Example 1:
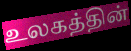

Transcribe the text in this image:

உலகத்தின்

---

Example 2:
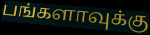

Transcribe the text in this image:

பங்களாவுக்கு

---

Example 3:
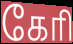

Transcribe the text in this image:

கேரி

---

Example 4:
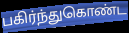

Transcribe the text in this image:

பகிர்ந்துகொண்ட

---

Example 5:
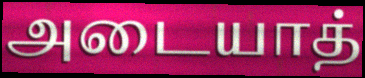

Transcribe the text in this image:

அடையாத்